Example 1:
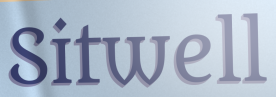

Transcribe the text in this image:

Sitwell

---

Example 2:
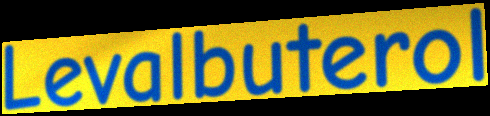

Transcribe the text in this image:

Levalbuterol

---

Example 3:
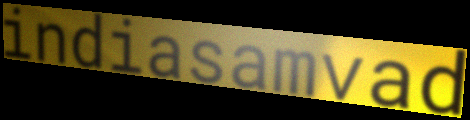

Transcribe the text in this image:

indiasamvad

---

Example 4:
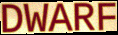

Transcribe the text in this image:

DWARF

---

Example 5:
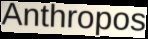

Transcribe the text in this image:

Anthropos